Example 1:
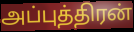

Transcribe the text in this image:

அப்புத்திரன்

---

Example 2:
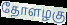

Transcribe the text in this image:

தோளழகு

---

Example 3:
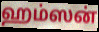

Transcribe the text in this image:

ஹம்ஸன்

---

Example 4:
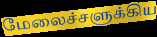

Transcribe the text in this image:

மேலைச்சளுக்கிய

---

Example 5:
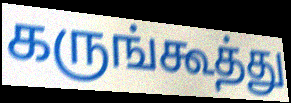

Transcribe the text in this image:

கருங்கூத்து